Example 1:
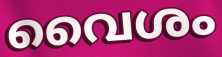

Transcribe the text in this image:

വൈശം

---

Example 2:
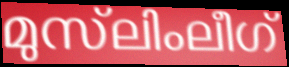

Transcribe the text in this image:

മുസ്‌ലിംലീഗ്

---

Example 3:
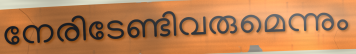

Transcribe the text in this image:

നേരിടേണ്ടിവരുമെന്നും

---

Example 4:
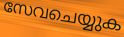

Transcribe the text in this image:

സേവചെയ്യുക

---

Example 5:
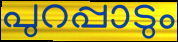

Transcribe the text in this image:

പുറപ്പാടും